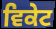
ਵਿਕੇਟ